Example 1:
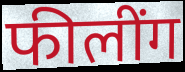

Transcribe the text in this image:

फीलींग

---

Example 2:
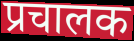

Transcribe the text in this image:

प्रचालक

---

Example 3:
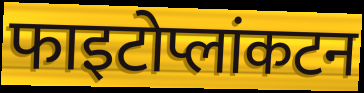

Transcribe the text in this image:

फाइटोप्लांकटन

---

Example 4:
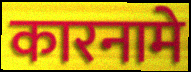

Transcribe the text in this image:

कारनामे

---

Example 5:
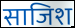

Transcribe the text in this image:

साजिश